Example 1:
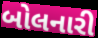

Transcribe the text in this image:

બોલનારી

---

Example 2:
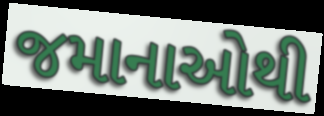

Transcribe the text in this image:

જમાનાઓથી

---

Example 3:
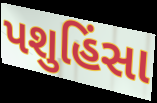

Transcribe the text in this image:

પશુહિંસા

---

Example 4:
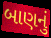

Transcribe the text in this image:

બાણનું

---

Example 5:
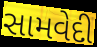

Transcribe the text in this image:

સામવેદી